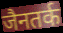
जैनतर्क